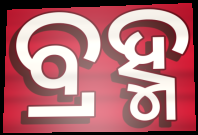
ବ୍ରହ୍ମ